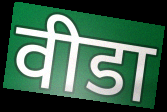
वीडा